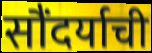
सौंदर्याची